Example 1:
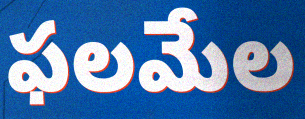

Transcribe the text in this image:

ఫలమేల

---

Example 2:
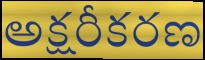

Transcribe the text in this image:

అక్షరీకరణ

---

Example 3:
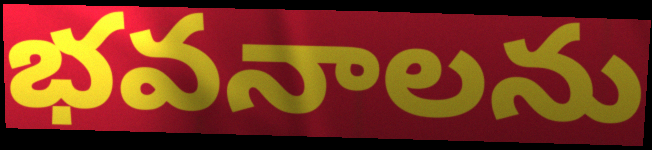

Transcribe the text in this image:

భవనాలను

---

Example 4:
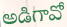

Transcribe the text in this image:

అడిగావో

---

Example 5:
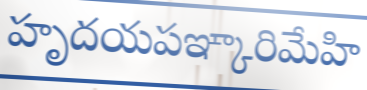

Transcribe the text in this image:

హృదయపఞ్కారిమేహి